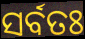
ସର୍ବତଃ